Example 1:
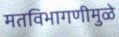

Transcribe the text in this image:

मतविभागणीमुळे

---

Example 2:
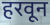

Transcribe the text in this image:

हरवून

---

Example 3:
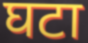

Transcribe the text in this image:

घटा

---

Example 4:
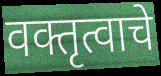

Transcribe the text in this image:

वक्तृत्वाचे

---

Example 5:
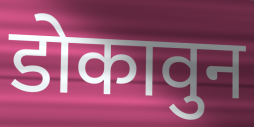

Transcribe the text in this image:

डोकावुन